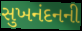
સુખનંદનની